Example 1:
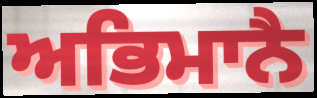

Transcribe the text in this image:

ਅਭਿਮਾਨੈ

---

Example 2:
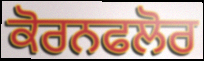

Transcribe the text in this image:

ਕੋਰਨਫਲੋਰ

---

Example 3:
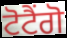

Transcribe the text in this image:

ਟੋਟੈਂਗੋ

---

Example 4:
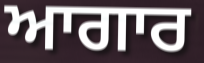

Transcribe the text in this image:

ਆਗਾਰ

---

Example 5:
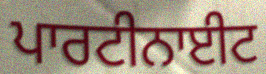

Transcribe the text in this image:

ਪਾਰਟੀਨਾਈਟ